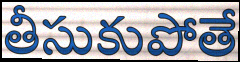
తీసుకుపోతే